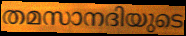
തമസാനദിയുടെ